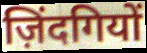
ज़िंदगियों